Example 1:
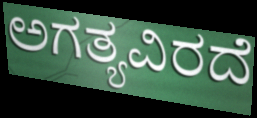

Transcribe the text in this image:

ಅಗತ್ಯವಿರದೆ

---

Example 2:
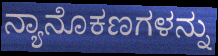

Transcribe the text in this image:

ನ್ಯಾನೊಕಣಗಳನ್ನು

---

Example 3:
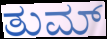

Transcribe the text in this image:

ತುಮ್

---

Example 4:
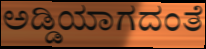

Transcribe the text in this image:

ಅಡ್ಡಿಯಾಗದಂತೆ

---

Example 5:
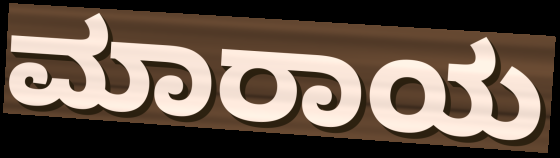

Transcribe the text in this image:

ಮಾರಾಯ